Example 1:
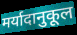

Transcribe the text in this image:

मर्यादानुकूल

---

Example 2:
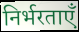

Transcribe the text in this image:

निर्भरताएँ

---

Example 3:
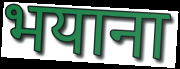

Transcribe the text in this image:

भयाना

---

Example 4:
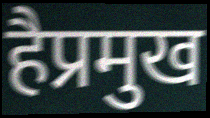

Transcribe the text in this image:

हैप्रमुख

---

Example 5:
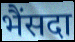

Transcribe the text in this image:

भैंसदा